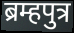
ब्रम्हपुत्र